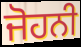
ਜੋਹਨੀ